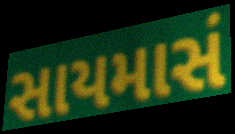
સાયમાસં